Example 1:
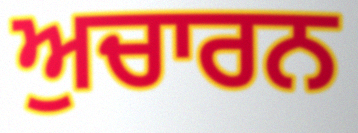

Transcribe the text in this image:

ਅੁਚਾਰਨ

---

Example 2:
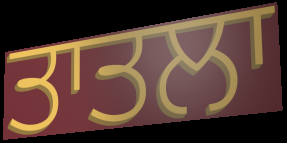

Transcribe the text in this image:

ਤਾਤਲਾ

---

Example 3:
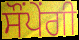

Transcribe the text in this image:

ਸੌਂਪੇਂਗੀ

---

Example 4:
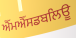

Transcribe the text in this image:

ਐੱਮਐੱਸਡਬਲਿਊ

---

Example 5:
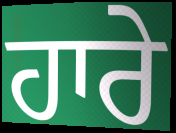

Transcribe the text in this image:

ਹਾਰੇ